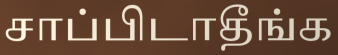
சாப்பிடாதீங்க